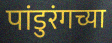
पांडुरंगच्या